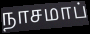
நாசமாப்